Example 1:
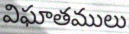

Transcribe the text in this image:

విఘాతములు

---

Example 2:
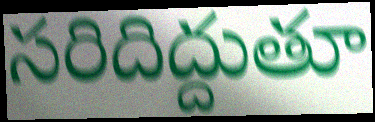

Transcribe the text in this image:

సరిదిద్దుతూ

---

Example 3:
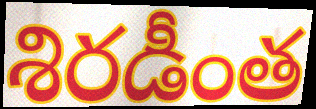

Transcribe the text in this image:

శిరడీంత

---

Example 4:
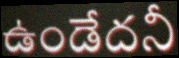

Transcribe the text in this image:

ఉండేదనీ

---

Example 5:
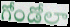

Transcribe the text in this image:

గోండోలా